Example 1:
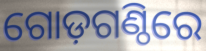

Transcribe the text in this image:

ଗୋଡ଼ଗଣ୍ଠିରେ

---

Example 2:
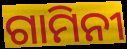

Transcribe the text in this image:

ଗାମିନୀ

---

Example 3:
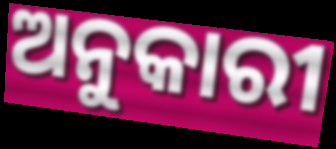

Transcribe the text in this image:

ଅନୁକାରୀ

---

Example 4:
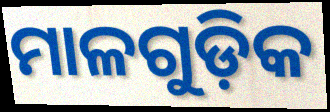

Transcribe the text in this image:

ମାଳଗୁଡ଼ିକ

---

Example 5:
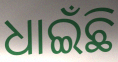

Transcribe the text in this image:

ଧାଇଁଛି